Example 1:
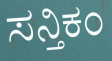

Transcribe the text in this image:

ಸನ್ತಿಕಂ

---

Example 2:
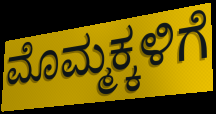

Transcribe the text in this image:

ಮೊಮ್ಮಕ್ಕಳಿಗೆ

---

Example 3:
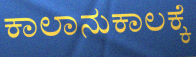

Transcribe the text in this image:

ಕಾಲಾನುಕಾಲಕ್ಕೆ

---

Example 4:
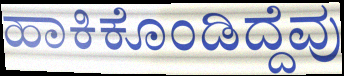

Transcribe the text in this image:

ಹಾಕಿಕೊಂಡಿದ್ದೆವು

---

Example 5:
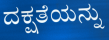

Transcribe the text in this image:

ದಕ್ಷತೆಯನ್ನು